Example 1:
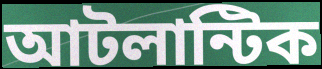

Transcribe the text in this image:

আটলান্টিক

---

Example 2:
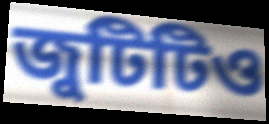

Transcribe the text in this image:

জুটিটিও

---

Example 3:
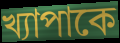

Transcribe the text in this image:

খ্যাপাকে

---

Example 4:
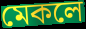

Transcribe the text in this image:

মেকলে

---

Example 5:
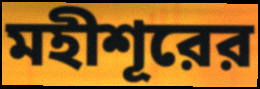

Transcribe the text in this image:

মহীশূরের